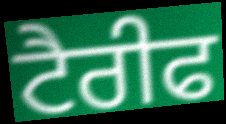
ਟੈਰੀਫ